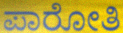
ಪಾರೋತಿ